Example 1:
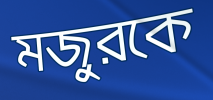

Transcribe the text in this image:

মজুরকে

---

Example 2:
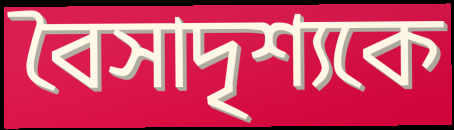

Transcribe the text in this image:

বৈসাদৃশ্যকে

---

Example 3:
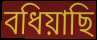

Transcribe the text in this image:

বধিয়াছি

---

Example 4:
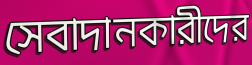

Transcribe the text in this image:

সেবাদানকারীদের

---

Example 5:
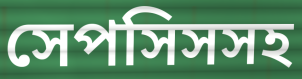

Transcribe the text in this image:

সেপসিসসহ